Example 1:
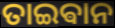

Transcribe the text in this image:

ତାଇଵାନ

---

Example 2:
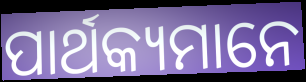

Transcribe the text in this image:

ପାର୍ଥକ୍ୟମାନେ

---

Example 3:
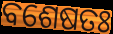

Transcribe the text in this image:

ବଶେଷତଃ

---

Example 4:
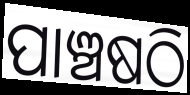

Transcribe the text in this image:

ପାଞ୍ଚଷଠି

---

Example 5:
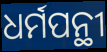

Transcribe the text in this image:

ଧର୍ମପନ୍ଥୀ